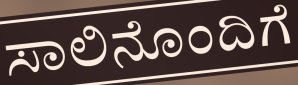
ಸಾಲಿನೊಂದಿಗೆ